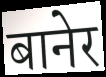
बानेर